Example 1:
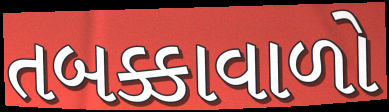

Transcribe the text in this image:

તબક્કાવાળો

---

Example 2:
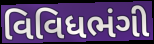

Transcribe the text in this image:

વિવિધભંગી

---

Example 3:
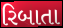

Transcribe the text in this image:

રિબાતા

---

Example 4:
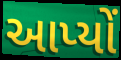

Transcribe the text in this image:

આપ્યોં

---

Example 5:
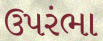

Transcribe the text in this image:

ઉપરંભા